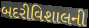
બદરીવિશાલની